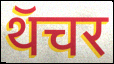
थॅचर